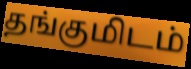
தங்குமிடம்